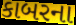
કાબરના